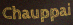
Chauppai